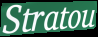
Stratou